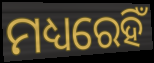
ମଧ୍ୟରେହିଁ